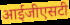
आईजीएसटी